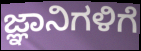
ಜ್ಞಾನಿಗಳಿಗೆ